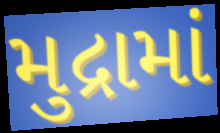
મુદ્રામાં